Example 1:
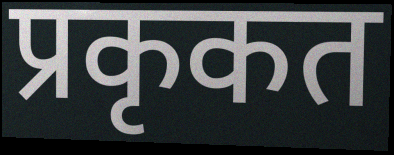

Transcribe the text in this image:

प्रकृकत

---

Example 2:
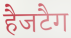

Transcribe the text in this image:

हैजटैग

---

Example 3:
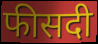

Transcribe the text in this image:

फीसदी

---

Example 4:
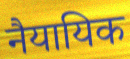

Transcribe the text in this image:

नैयायिक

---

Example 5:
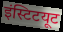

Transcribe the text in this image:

इंस्टिटयूट